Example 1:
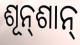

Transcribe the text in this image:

ଶୂନ୍‌ଶାନ୍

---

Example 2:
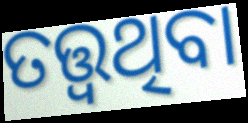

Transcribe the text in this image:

ତତ୍ତ୍ୱଥିବା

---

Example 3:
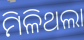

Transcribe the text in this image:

ମିଳିଥଲା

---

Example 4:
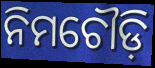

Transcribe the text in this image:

ନିମଚୌଡ଼ି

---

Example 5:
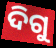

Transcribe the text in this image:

ଦିଗୁ